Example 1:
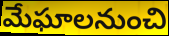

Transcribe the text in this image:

మేఘాలనుంచి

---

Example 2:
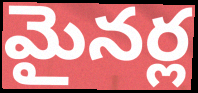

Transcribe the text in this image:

మైనర్ల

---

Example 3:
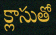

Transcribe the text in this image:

క్లాసుతో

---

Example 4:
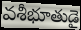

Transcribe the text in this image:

వశీభూతుడై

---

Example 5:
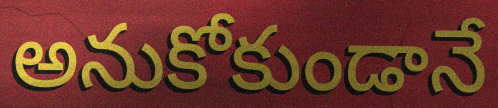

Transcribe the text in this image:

అనుకోకుండానే